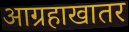
आग्रहाखातर